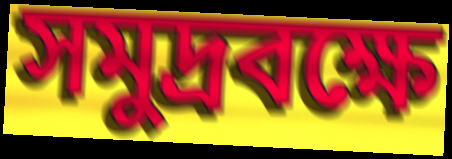
সমুদ্রবক্ষে